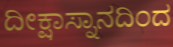
ದೀಕ್ಷಾಸ್ನಾನದಿಂದ